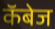
कॅबेज